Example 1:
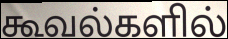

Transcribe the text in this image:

கூவல்களில்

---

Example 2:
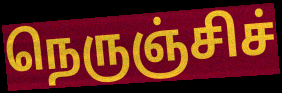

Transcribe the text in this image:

நெருஞ்சிச்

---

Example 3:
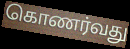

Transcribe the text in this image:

கொணர்வது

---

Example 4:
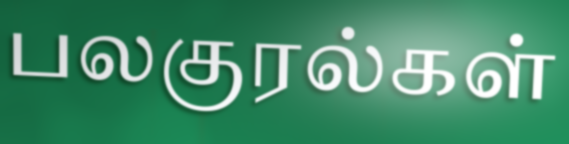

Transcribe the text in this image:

பலகுரல்கள்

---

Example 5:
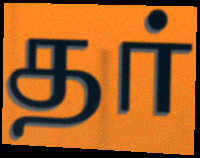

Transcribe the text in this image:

தர்